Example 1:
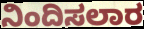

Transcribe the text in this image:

ನಿಂದಿಸಲಾರ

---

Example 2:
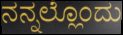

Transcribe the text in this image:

ನನ್ನಲ್ಲೊಂದು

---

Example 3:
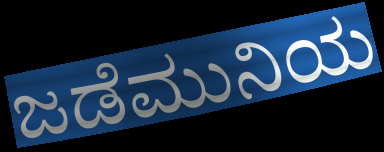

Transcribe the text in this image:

ಜಡೆಮುನಿಯ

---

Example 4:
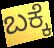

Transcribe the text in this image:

ಬಕ್ಕೆ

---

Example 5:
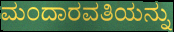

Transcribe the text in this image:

ಮಂದಾರವತಿಯನ್ನು